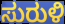
ಸುರುಳಿ